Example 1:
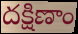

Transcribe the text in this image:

దక్షిణాం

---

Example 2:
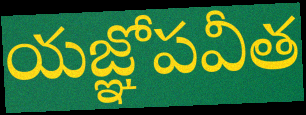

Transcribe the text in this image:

యజ్ఞోపవీత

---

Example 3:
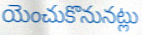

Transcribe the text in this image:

యెంచుకొనునట్లు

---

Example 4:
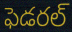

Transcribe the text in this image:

ఫెడరల్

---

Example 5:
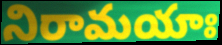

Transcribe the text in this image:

నిరామయాః